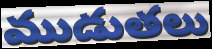
ముడుతలు